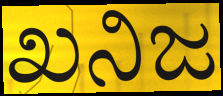
ಖನಿಜ